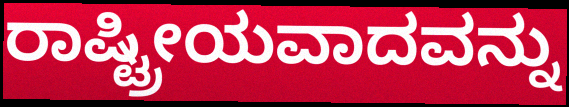
ರಾಷ್ಟ್ರೀಯವಾದವನ್ನು